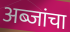
अब्जांचा